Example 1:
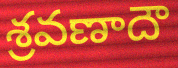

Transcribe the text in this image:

శ్రవణాదౌ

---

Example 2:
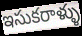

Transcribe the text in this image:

ఇసుకరాళ్ళు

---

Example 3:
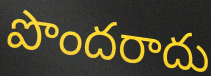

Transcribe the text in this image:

పొందరాదు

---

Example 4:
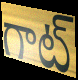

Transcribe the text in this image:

గాట్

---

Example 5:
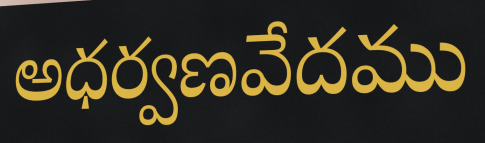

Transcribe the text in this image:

అధర్వణవేదము